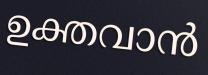
ഉക്തവാൻ